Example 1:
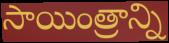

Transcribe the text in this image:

సాయింత్రాన్ని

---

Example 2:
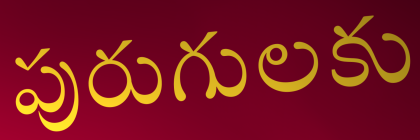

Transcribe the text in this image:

పురుగులకు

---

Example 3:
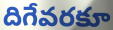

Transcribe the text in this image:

దిగేవరకూ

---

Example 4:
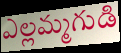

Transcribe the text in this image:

ఎల్లమ్మగుడి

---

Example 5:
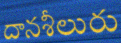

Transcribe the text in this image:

దానశీలురు